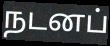
நடனப்